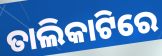
ତାଲିକାଟିରେ